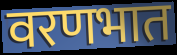
वरणभात